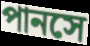
পানসে